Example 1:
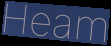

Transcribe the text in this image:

Heam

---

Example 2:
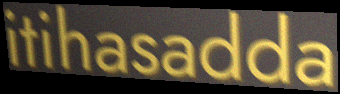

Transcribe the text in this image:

itihasadda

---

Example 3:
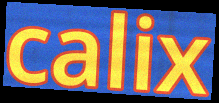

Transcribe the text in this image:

calix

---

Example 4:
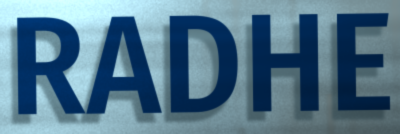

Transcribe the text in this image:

RADHE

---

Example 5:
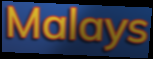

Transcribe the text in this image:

Malays